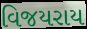
વિજયરાય